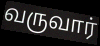
வருவார்